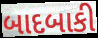
બાદબાકી